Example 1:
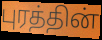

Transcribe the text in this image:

புரத்தின்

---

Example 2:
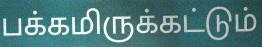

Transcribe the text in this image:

பக்கமிருக்கட்டும்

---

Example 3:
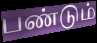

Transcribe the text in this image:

பண்டும்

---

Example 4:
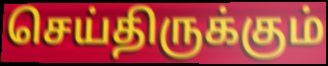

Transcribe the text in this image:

செய்திருக்கும்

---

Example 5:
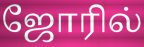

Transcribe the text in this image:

ஜோரில்